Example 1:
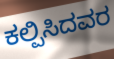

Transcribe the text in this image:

ಕಲ್ಪಿಸಿದವರ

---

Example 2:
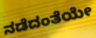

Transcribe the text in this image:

ನಡೆದಂತೆಯೇ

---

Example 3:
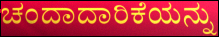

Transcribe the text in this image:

ಚಂದಾದಾರಿಕೆಯನ್ನು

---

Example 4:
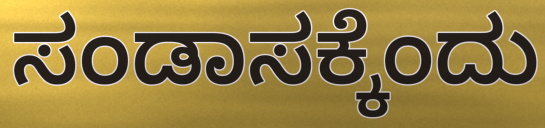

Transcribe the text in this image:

ಸಂಡಾಸಕ್ಕೆಂದು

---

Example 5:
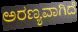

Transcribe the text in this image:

ಅರಣ್ಯವಾಗಿದೆ